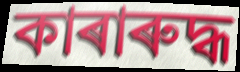
কাৰাৰুদ্ধ